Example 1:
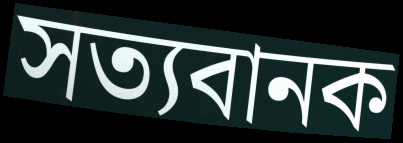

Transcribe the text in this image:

সত্যবানক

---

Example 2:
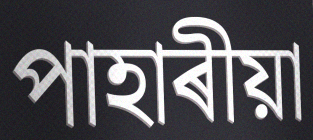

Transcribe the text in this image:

পাহাৰীয়া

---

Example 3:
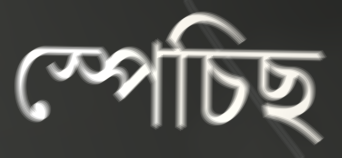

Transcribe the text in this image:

স্পেচিছ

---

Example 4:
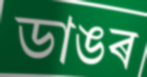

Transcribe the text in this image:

ডাঙৰ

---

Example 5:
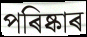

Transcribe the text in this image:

পৰিষ্কাৰ